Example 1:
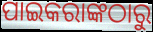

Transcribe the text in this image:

ପାଇକରାଙ୍କଠାରୁ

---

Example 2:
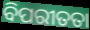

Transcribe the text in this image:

ବିପରୀତତା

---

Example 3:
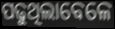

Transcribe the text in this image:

ପଢୁଥିଲାବେଳେ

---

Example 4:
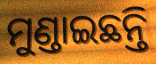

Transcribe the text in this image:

ମୁଣ୍ଡାଇଛନ୍ତି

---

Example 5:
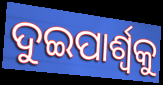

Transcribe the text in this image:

ଦୁଇପାର୍ଶ୍ବକୁ